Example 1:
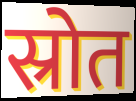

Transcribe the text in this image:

स्रोत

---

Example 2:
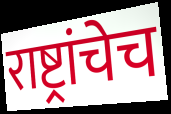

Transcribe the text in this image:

राष्ट्रांचेच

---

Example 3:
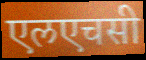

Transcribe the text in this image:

एलएचसी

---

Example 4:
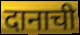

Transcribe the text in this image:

दानाची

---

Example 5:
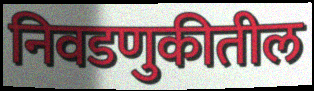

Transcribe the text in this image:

निवडणुकीतील